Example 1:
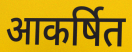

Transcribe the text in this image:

आकर्षित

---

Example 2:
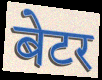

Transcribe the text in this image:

बेटर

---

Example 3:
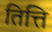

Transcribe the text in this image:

तित्ति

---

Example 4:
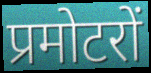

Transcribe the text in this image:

प्रमोटरों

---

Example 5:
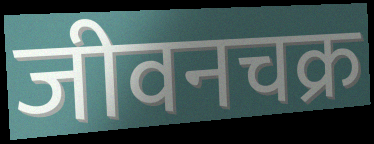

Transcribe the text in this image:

जीवनचक्र